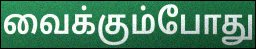
வைக்கும்போது